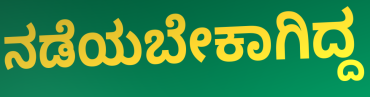
ನಡೆಯಬೇಕಾಗಿದ್ದ